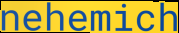
nehemich